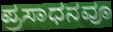
ಪ್ರಸಾಧನವೂ